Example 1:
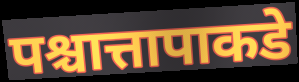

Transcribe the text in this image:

पश्चात्तापाकडे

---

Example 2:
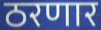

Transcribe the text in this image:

ठरणार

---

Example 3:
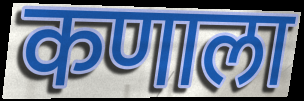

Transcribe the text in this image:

कणाला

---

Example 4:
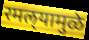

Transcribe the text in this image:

रमल्यामुळे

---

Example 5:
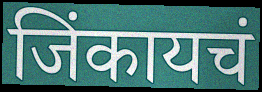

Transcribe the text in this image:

जिंकायचं